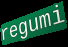
regumi